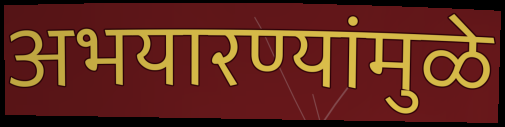
अभयारण्यांमुळे